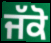
ਜੱਕੋ